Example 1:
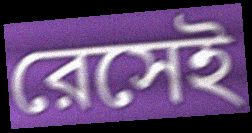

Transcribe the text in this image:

রেসেই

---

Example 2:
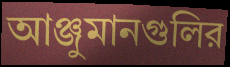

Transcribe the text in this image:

আঞ্জুমানগুলির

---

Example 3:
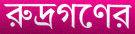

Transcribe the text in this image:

রুদ্রগণের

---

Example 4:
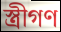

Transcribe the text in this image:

স্ত্রীগণ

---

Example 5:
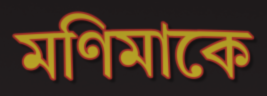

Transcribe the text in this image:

মণিমাকে